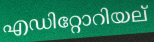
എഡിറ്റോറിയല്